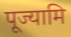
पूज्यामि